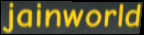
jainworld